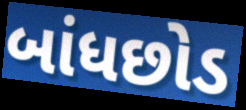
બાંધછોડ